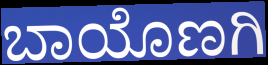
ಬಾಯೊಣಗಿ